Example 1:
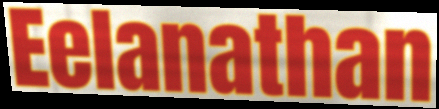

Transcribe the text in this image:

Eelanathan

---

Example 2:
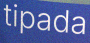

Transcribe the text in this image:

tipada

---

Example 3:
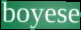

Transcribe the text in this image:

boyese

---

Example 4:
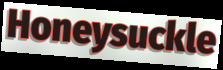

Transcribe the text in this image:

Honeysuckle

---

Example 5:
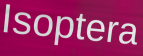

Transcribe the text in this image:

Isoptera